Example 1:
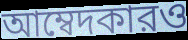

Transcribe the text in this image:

আম্বেদকারও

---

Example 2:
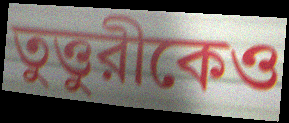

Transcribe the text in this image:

তুত্তুরীকেও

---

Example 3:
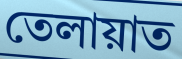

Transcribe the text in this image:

তেলায়াত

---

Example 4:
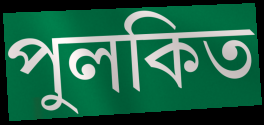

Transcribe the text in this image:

পুলকিত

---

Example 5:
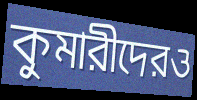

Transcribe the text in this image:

কুমারীদেরও